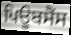
ਪਿਊਬਸੈਂਸ